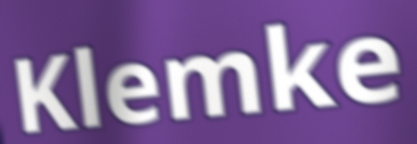
Klemke